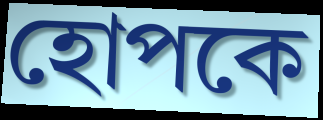
হোপকে